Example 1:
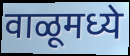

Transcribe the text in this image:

वाळूमध्ये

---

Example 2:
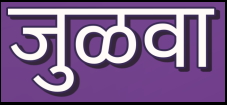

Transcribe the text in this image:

जुळवा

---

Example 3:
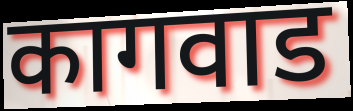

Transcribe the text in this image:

कागवाड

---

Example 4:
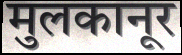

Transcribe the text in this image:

मुलकानूर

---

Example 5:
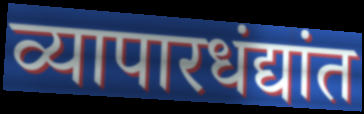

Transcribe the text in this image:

व्यापारधंद्यांत